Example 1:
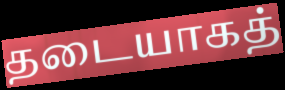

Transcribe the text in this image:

தடையாகத்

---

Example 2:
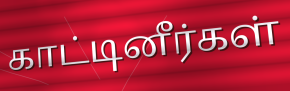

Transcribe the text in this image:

காட்டினீர்கள்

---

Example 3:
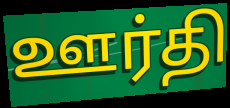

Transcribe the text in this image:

ஊர்தி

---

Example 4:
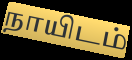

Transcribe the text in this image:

நாயிடம்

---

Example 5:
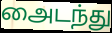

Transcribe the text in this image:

அைடந்து